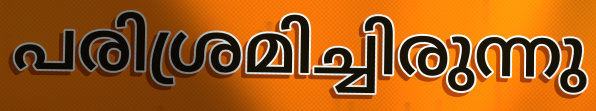
പരിശ്രമിച്ചിരുന്നു